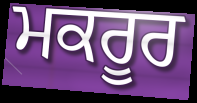
ਮਕਰੂਰ